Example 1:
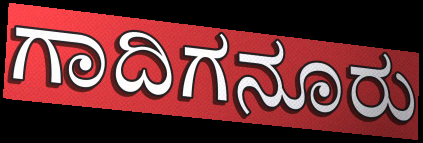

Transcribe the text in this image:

ಗಾದಿಗನೂರು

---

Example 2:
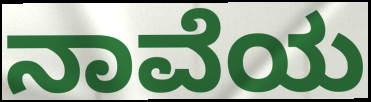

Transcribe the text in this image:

ನಾವೆಯ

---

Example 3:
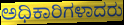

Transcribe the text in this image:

ಅಧಿಕಾರಿಗಳಾದರು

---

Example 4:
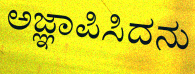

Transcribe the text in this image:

ಅಜ್ಞಾಪಿಸಿದನು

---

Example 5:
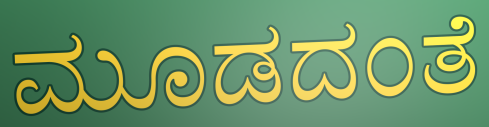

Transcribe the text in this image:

ಮೂಡದಂತೆ